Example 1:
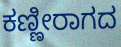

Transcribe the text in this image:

ಕಣ್ಣೀರಾಗದ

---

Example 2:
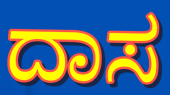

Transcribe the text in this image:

ದಾಸ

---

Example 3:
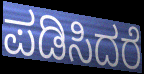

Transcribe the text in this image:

ಪಡಿಸಿದರೆ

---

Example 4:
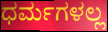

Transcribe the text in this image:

ಧರ್ಮಗಳಲ್ಲ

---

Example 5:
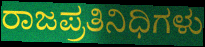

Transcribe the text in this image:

ರಾಜಪ್ರತಿನಿಧಿಗಳು